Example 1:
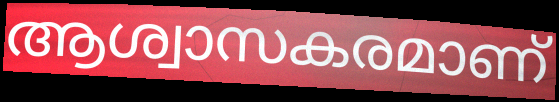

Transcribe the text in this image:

ആശ്വാസകരമാണ്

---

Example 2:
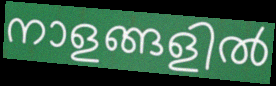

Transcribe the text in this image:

നാളങ്ങളിൽ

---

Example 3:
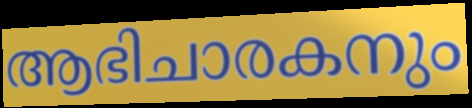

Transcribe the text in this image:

ആഭിചാരകനും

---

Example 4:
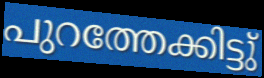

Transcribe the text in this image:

പുറത്തേക്കിട്ടു്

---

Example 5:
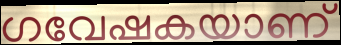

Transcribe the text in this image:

ഗവേഷകയാണ്